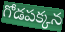
గోడపక్కన